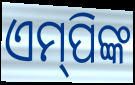
ଏମ୍‌ପିଙ୍କ